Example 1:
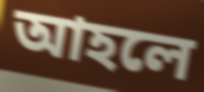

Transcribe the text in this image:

আহলে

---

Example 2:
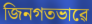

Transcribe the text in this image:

জিনগতভাৱে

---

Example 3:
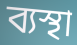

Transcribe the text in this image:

ব্যস্থা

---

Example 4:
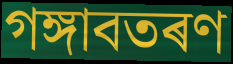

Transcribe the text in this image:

গঙ্গাবতৰণ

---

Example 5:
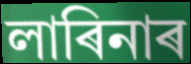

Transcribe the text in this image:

লাৰিনাৰ